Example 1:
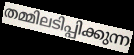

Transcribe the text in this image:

തമ്മിലടിപ്പിക്കുന്ന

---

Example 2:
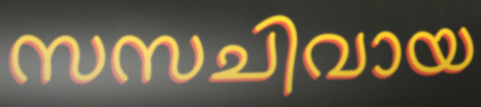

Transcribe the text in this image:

സസചിവായ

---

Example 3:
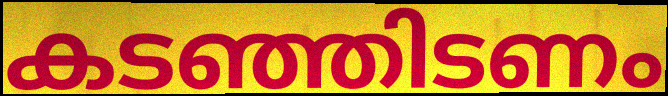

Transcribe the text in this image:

കടഞ്ഞിടണം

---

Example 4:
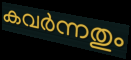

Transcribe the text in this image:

കവർന്നതും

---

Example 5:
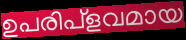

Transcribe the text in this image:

ഉപരിപ്ളവമായ